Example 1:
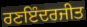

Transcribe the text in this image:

ਰਣਇੰਦਰਜੀਤ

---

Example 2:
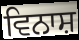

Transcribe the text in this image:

ਵਿਨਾਸ਼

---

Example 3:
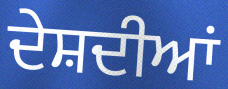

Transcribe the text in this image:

ਦੇਸ਼ਦੀਆਂ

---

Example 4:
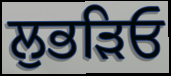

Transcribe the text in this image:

ਲੁਭੜਿਓ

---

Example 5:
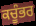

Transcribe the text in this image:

ਕਚੂੰਭਰ